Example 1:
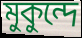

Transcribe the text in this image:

মুকুন্দে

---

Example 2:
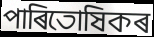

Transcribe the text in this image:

পাৰিতোষিকৰ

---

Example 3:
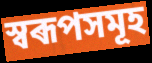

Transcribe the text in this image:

স্বৰূপসমূহ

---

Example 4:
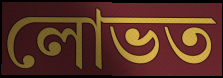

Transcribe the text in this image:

লোভত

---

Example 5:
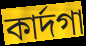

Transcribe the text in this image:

কাৰ্দগা